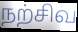
நற்சிவ